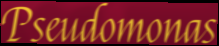
Pseudomonas